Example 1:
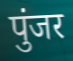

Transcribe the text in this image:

पुंजर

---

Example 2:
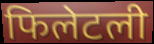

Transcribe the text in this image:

फिलेटली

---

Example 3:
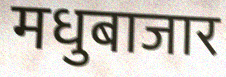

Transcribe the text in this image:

मधुबाजार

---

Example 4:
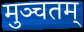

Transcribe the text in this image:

मुञ्चतम्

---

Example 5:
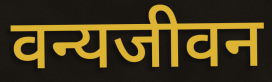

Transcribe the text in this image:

वन्यजीवन